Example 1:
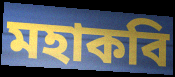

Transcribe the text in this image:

মহাকবি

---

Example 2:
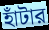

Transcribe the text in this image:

হাঁটার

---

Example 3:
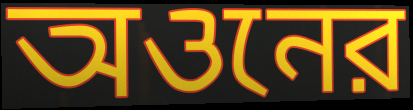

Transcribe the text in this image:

অওনের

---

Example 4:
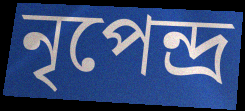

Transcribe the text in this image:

নৃপেন্দ্র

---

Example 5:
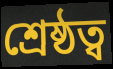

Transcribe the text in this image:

শ্রেষ্ঠত্ব